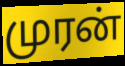
முரன்